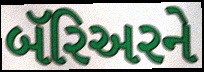
બૅરિઅરને